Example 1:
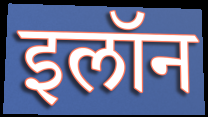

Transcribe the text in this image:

इलॉन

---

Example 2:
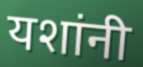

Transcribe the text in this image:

यशांनी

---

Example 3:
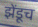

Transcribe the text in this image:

झेंडूच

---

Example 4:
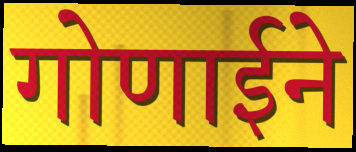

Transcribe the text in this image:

गोणाईने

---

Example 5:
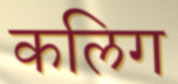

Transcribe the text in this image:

कलिग